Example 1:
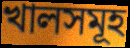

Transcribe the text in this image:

খালসমূহ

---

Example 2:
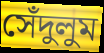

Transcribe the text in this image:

সেঁদুলুম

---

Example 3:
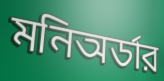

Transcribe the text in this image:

মনিঅর্ডার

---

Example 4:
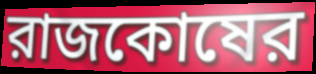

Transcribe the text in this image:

রাজকোষের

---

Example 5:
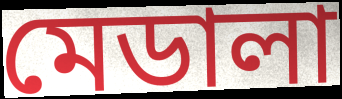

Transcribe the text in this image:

মেডালা